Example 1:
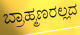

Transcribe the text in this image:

ಬ್ರಾಹ್ಮಣರಲ್ಲದ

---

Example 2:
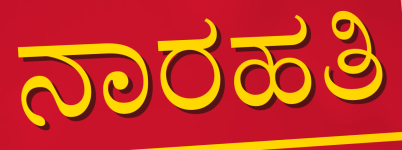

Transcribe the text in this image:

ನಾರಹತಿ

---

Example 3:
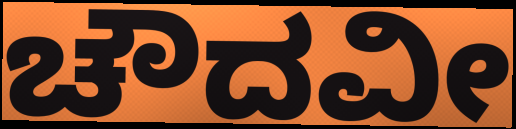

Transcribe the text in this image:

ಚೌದವೀ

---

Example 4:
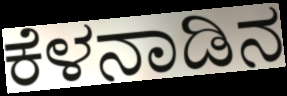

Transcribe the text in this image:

ಕೆಳನಾಡಿನ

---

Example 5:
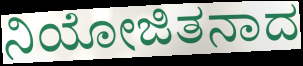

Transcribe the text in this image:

ನಿಯೋಜಿತನಾದ